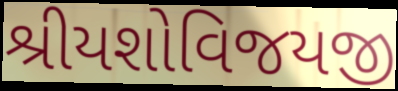
શ્રીયશોવિજયજી